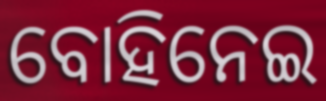
ବୋହିନେଇ